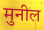
मुनील